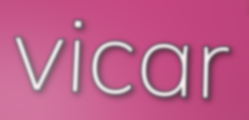
vicar